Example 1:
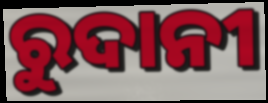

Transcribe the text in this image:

ରୁଦାନୀ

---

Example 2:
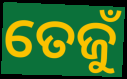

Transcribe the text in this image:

ତେଜୁଁ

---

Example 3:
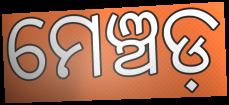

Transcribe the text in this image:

ମେଞ୍ଚଡ଼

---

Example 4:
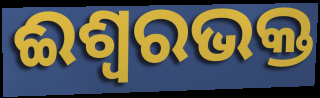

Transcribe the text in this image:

ଈଶ୍ୱରଭକ୍ତ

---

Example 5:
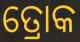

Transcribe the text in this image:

ତ୍ରୋକ